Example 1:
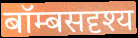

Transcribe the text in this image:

बॉम्बसदृश्य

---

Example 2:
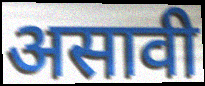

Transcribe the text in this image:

असावी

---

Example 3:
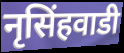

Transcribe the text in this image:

नृसिंहवाडी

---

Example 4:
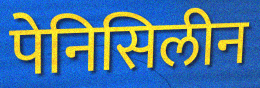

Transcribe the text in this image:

पेनिसिलीन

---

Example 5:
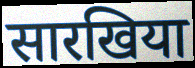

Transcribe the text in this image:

सारखिया